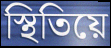
স্থিতিয়ে